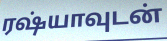
ரஷ்யாவுடன்